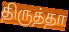
திருத்தா